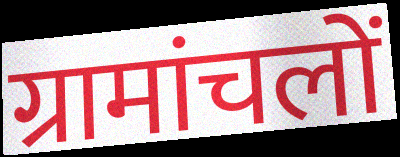
ग्रामांचलों